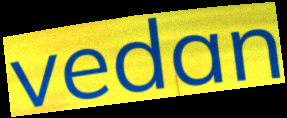
vedan